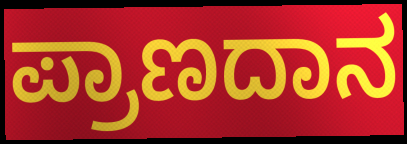
ಪ್ರಾಣದಾನ